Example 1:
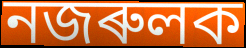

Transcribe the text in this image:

নজৰুলক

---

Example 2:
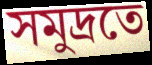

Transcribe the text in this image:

সমুদ্ৰতে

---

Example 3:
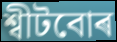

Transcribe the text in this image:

শ্বীটবোৰ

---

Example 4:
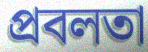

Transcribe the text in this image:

প্ৰবলতা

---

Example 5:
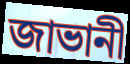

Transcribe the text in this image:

জাভানী